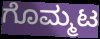
ಗೊಮ್ಮಟ